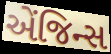
એંજિન્સ